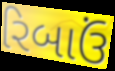
રિબાઉં